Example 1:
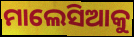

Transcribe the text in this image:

ମାଲେସିଆକୁ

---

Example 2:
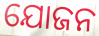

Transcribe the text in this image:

ଯୋଜନ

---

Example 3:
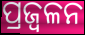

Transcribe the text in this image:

ପ୍ରଜ୍ବଳନ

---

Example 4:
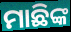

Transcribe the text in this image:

ମାଛିଙ୍କ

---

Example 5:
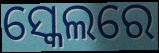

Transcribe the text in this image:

ସ୍କେଲରେ